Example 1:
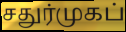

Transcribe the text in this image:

சதுர்முகப்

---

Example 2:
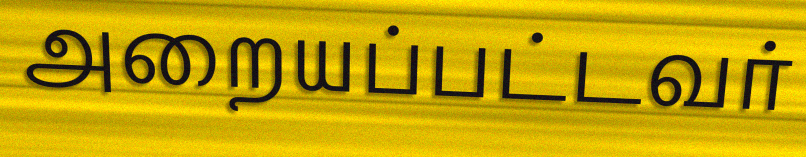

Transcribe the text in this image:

அறையப்பட்டவர்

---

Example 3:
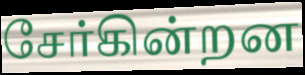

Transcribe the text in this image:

சேர்கின்றன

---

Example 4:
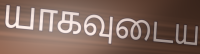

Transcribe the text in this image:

யாகவுடைய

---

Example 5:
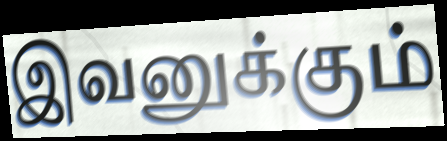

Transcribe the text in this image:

இவனுக்கும்